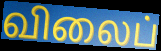
விலைப்